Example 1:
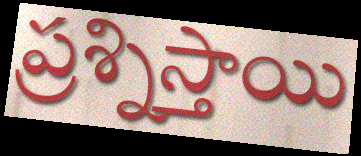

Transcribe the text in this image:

ప్రశ్నిస్తాయి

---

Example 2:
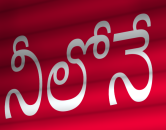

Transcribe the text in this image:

నీలోనే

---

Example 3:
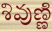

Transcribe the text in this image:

శివుణ్ణి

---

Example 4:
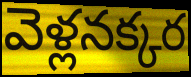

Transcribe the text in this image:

వెళ్లనక్కర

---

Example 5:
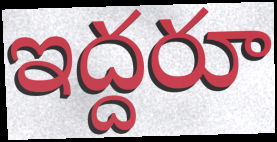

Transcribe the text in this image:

ఇద్దరూ